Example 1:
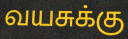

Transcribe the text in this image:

வயசுக்கு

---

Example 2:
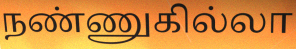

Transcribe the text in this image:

நண்ணுகில்லா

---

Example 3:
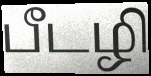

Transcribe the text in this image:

பீடழி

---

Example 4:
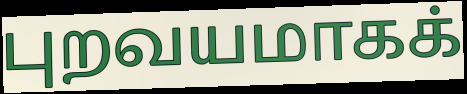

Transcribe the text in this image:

புறவயமாகக்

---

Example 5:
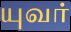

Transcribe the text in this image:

யுவர்